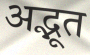
अद्भूत